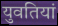
युवतियां